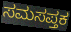
ಸಮಸಪ್ತಕ